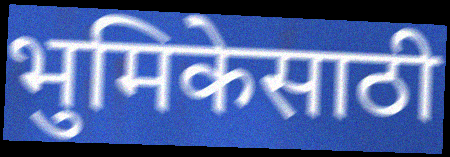
भुमिकेसाठी